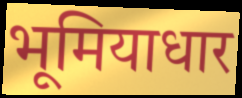
भूमियाधार